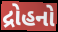
દ્રોહનો